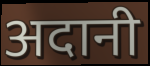
अदानी